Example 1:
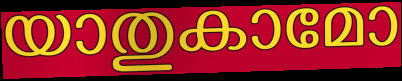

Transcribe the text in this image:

യാതുകാമോ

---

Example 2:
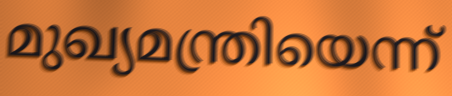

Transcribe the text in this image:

മുഖ്യമന്ത്രിയെന്ന്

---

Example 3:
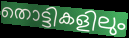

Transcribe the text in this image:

തൊട്ടികളിലും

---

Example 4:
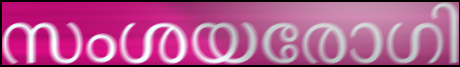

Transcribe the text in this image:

സംശയരോഗി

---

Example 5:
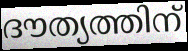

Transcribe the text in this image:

ദൗത്യത്തിന്